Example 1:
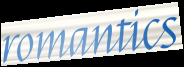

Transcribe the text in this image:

romantics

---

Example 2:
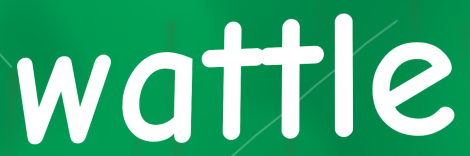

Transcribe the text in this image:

wattle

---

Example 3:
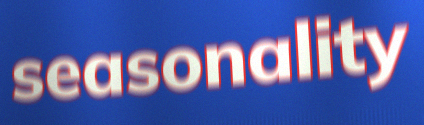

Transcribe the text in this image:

seasonality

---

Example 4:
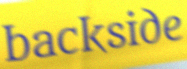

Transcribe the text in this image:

backside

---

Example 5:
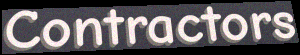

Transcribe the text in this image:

Contractors